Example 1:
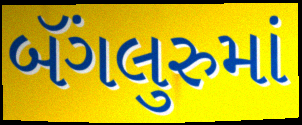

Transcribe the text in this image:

બૅંગલુરુમાં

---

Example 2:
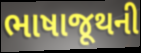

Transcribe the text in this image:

ભાષાજૂથની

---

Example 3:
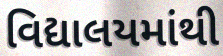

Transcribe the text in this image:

વિદ્યાલયમાંથી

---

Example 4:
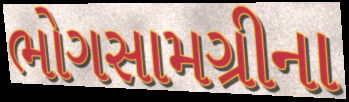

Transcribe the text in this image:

ભોગસામગ્રીના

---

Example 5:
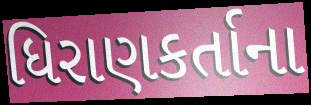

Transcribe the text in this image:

ધિરાણકર્તાના